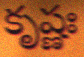
కృష్ణః